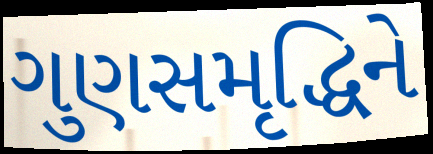
ગુણસમૃદ્ધિને